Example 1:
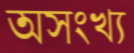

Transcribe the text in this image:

অসংখ্য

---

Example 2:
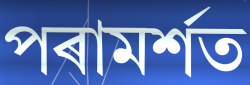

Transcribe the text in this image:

পৰামৰ্শত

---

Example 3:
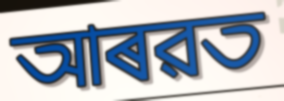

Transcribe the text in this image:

আৰৱত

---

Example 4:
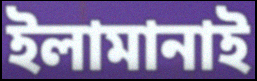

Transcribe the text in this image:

ইলামানাই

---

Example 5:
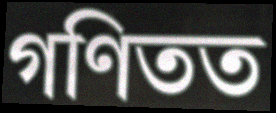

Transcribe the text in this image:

গণিতত